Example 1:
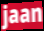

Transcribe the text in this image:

jaan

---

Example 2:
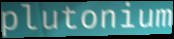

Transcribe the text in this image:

plutonium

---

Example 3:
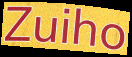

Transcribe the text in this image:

Zuiho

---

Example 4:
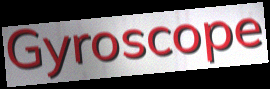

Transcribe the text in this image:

Gyroscope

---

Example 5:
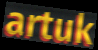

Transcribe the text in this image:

artuk